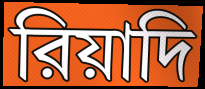
রিয়াদি